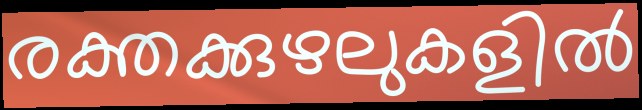
രക്തക്കുഴലുകളിൽ